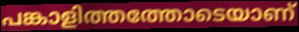
പങ്കാളിത്തത്തോടെയാണ്